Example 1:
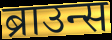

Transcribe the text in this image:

ब्राउन्स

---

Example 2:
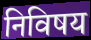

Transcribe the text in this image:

निविषय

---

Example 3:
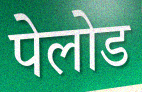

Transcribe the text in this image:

पेलोड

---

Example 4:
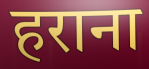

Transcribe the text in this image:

हराना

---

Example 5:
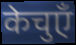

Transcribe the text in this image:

केचुएँ